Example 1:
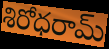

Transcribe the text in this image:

శిరోధరామ్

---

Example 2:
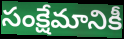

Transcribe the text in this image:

సంక్షేమానికీ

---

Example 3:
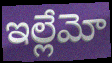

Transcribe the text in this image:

ఇల్లేమో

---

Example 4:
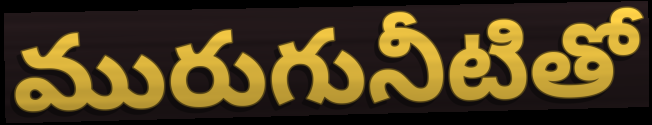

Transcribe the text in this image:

మురుగునీటితో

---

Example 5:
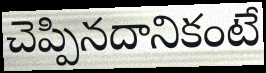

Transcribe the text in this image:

చెప్పినదానికంటే